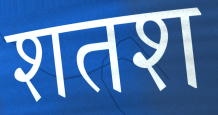
शतश